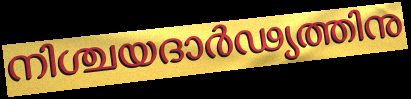
നിശ്ചയദാർഢ്യത്തിനു